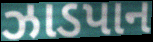
ઝાડપાન